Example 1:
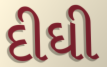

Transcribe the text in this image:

દીઘી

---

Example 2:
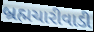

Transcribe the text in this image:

બ્રહ્મચારીવાડી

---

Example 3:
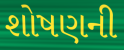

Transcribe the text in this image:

શોષણની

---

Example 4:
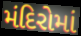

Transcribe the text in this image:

મંદિરોમાં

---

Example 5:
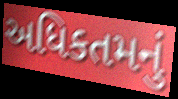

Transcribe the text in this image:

અધિકતમનું